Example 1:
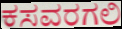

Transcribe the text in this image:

ಕಸವರಗಲಿ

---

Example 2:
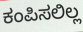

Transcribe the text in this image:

ಕಂಪಿಸಲಿಲ್ಲ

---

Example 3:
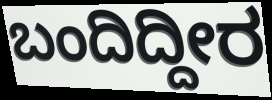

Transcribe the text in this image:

ಬಂದಿದ್ದೀರ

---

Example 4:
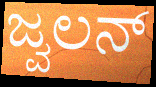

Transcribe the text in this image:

ಜ್ವಲನ್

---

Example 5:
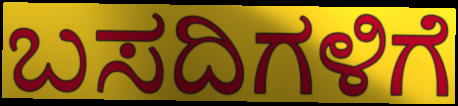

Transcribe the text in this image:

ಬಸದಿಗಳಿಗೆ